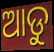
ଆଡୁ